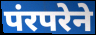
पंरपरेने